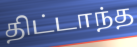
திட்டாந்த